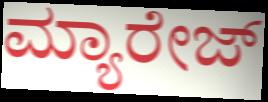
ಮ್ಯಾರೇಜ್